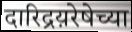
दारिद्रय़रेषेच्या